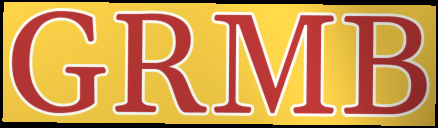
GRMB